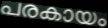
പരകായം